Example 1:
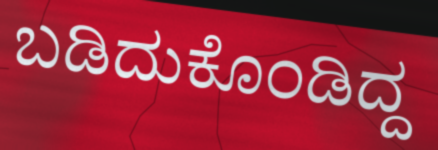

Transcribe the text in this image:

ಬಡಿದುಕೊಂಡಿದ್ದ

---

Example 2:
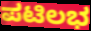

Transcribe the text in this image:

ಪಟಿಲಭ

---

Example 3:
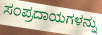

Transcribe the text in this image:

ಸಂಪ್ರದಾಯಗಳನ್ನು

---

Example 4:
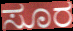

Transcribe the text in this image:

ಸೂರ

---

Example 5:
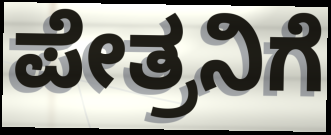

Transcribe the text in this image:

ಪೇತ್ರನಿಗೆ